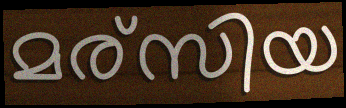
മര്സിയ